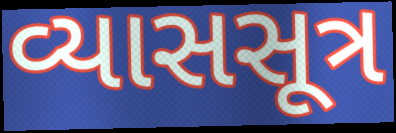
વ્યાસસૂત્ર